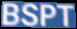
BSPT